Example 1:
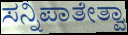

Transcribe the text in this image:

ಸನ್ನಿಪಾತೇತ್ವಾ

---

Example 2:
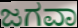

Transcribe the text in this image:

ಜಗವಾ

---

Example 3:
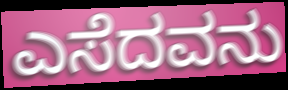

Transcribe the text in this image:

ಎಸೆದವನು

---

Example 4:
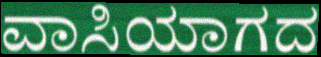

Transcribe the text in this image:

ವಾಸಿಯಾಗದ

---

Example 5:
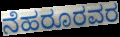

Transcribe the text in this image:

ನೆಹರೂರವರ